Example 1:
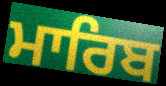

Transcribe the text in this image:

ਮਾਰਿਬ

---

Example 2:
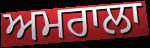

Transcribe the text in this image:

ਅਮਰਾਲਾ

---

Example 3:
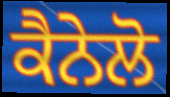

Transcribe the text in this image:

ਕੈਨੇਲੋ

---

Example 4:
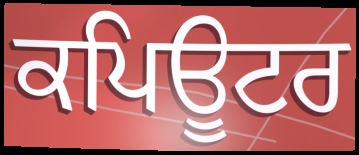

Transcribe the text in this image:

ਕਪਿਊਟਰ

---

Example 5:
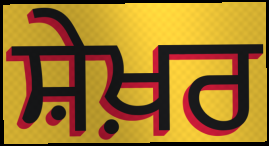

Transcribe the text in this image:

ਸ਼ੇਖ਼ਰ